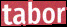
tabor